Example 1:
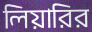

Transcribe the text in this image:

লিয়ারির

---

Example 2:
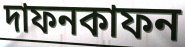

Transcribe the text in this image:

দাফনকাফন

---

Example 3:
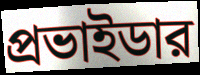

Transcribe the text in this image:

প্রভাইডার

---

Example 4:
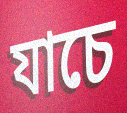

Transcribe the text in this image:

যাচে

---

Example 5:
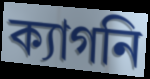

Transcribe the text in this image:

ক্যাগনি